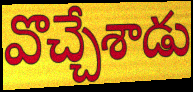
వొచ్చేశాడు